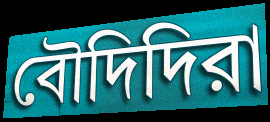
বৌদিদিরা